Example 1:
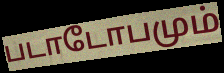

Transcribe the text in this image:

படாடோபமும்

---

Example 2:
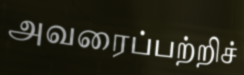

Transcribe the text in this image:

அவரைப்பற்றிச்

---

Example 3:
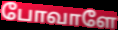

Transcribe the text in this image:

போவாளே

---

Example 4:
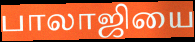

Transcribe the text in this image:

பாலாஜியை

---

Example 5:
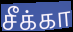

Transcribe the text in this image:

சீக்கா